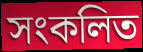
সংকলিত